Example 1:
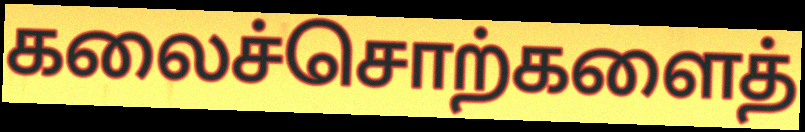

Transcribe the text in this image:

கலைச்சொற்களைத்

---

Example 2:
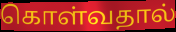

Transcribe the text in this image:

கொள்வதால்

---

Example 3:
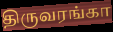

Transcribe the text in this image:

திருவரங்கா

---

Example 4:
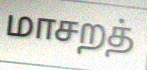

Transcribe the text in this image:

மாசறத்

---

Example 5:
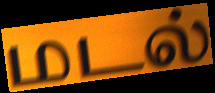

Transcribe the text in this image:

மடல்